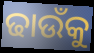
ଢାଉଁକୁ